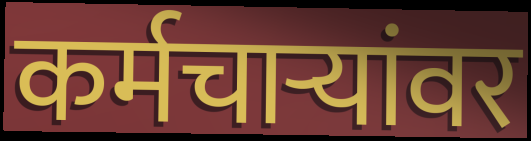
कर्मचार्‍यांवर